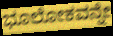
ಭೂಲೋಕವನ್ನೇ